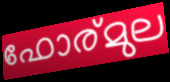
ഫോര്മുല